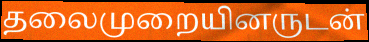
தலைமுறையினருடன்